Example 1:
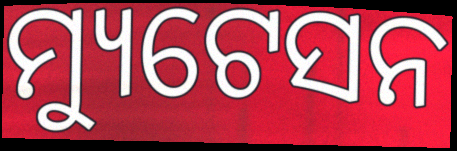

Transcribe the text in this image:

ମ୍ୟୁଟେସନ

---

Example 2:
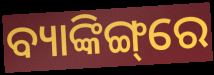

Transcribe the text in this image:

ବ୍ୟାଙ୍କିଙ୍ଗ୍‌ରେ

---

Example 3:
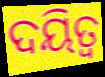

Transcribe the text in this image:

ଦୟିତ୍ୱ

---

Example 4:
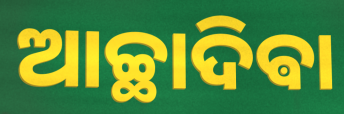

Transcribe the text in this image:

ଆଚ୍ଛାଦିଵା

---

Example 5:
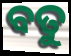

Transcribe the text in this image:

ବତୁ